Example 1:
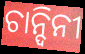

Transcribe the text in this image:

ଚାନ୍ଦିନୀ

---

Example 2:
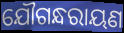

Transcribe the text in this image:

ଯୌଗନ୍ଧରାୟଣ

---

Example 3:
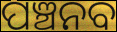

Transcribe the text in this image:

ପଞ୍ଚନବ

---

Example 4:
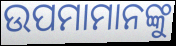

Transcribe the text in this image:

ଉପମାମାନଙ୍କୁ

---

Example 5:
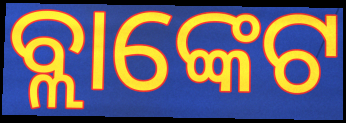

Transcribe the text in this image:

ବ୍ଲାଙ୍କେଟ